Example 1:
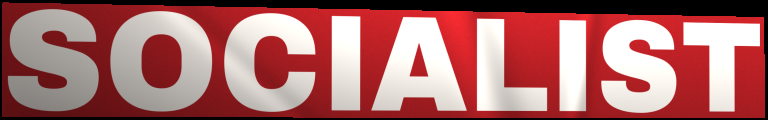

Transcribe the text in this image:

SOCIALIST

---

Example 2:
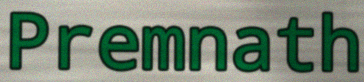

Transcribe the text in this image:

Premnath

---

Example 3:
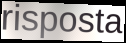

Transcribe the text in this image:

risposta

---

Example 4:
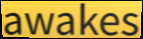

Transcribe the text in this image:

awakes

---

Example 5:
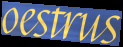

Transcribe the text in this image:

oestrus